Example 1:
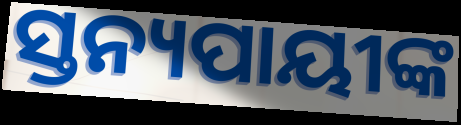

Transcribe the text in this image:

ସ୍ତନ୍ୟପାୟୀଙ୍କ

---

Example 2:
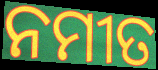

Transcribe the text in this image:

ନମୀତ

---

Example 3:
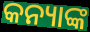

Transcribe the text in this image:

କନ୍ୟାଙ୍କ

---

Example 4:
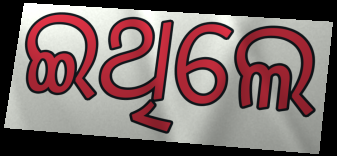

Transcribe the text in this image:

ଇଥିଲେ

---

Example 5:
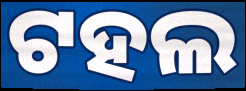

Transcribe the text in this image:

ଟହଲ